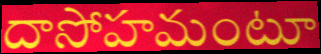
దాసోహమంటూ